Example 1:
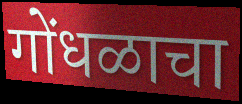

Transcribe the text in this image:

गोंधळाचा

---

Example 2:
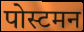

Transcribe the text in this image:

पोस्टमन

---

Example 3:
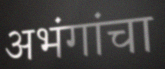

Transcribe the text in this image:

अभंगांचा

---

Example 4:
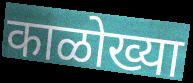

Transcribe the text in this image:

काळोख्या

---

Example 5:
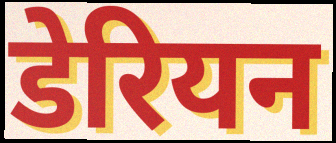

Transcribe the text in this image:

डेरियन